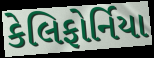
કેલિફોર્નિયા